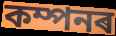
কম্পনৰ